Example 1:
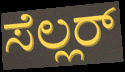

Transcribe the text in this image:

ಸೆಲ್ಲರ್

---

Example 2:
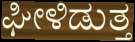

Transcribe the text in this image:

ಘೀಳಿಡುತ್ತ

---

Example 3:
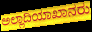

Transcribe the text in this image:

ಅಲ್ಲಾದಿಯಾಖಾನರು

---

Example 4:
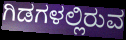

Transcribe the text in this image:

ಗಿಡಗಳಲ್ಲಿರುವ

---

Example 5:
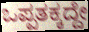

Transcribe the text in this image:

ಒಪ್ಪತಕ್ಕದ್ದೇ